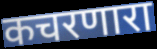
कचरणारा